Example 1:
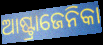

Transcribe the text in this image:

ଆଷ୍ଟ୍ରାଜେନିକା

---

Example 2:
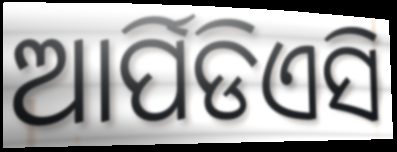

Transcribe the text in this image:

ଆର୍ପିଡିଏସି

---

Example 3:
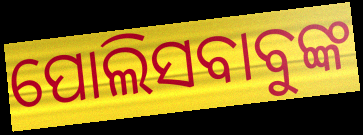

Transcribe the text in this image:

ପୋଲିସବାବୁଙ୍କ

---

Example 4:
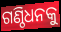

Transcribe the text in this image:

ଗଣ୍ଠିଧନକୁ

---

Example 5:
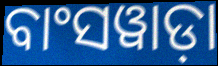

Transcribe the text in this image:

ବାଂସୱାଡ଼ା